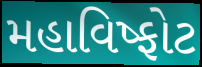
મહાવિષ્ફોટ